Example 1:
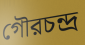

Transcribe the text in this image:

গৌরচন্দ্র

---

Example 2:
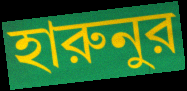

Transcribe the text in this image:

হারুনুর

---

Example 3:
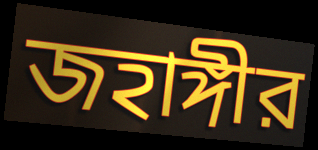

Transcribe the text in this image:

জহাঙ্গীর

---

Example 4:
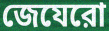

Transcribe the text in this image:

জেযেরো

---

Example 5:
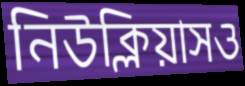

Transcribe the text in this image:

নিউক্লিয়াসও